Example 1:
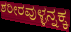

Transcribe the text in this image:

ಶರೀರವುಳ್ಳನ್ನಕ್ಕ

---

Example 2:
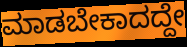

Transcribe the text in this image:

ಮಾಡಬೇಕಾದದ್ದೇ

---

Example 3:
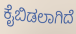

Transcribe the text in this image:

ಕೈಬಿಡಲಾಗಿದೆ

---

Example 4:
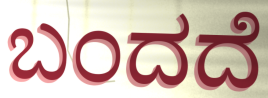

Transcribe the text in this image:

ಬಂದದೆ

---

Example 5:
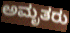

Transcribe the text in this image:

ಅಮೃತರು